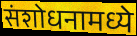
संशोधनामध्ये